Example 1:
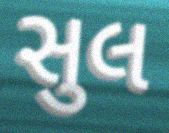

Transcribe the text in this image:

સુલ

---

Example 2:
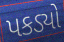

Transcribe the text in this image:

પકડ્યો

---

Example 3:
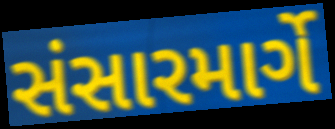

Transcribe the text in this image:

સંસારમાર્ગે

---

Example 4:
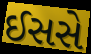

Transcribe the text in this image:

ઈસસે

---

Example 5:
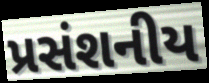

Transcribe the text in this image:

પ્રસંશનીય